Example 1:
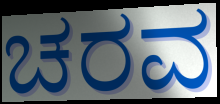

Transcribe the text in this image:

ಚರವ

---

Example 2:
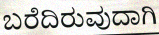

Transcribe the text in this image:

ಬರೆದಿರುವುದಾಗಿ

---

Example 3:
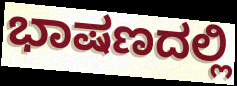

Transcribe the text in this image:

ಭಾಷಣದಲ್ಲಿ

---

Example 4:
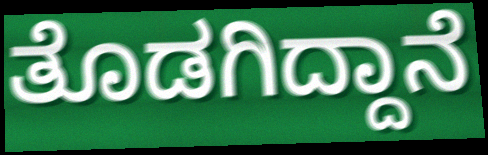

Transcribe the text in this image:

ತೊಡಗಿದ್ದಾನೆ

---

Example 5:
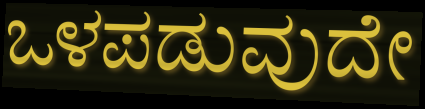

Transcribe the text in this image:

ಒಳಪಡುವುದೇ